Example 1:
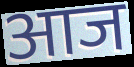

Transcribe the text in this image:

आज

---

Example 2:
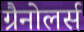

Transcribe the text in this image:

ग्रैनोलर्स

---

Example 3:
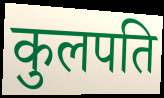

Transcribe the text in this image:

कुलपति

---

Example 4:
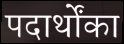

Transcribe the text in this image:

पदार्थोंका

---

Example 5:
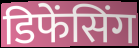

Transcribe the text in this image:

डिफेंसिंग